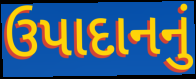
ઉપાદાનનું